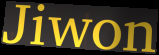
Jiwon